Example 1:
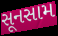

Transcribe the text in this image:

સૂનસામ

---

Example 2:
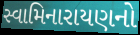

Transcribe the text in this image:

સ્વામિનારાયણનો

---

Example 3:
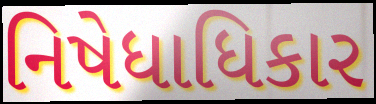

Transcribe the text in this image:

નિષેધાધિકાર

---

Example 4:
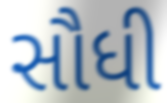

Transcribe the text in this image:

સૌધી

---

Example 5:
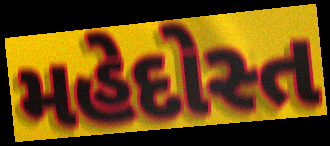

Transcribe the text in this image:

મહેદોસ્ત